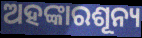
ଅହଙ୍କାରଶୂନ୍ୟ